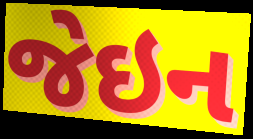
જેઇન